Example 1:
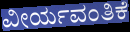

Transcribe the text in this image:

ವೀರ್ಯವಂತಿಕೆ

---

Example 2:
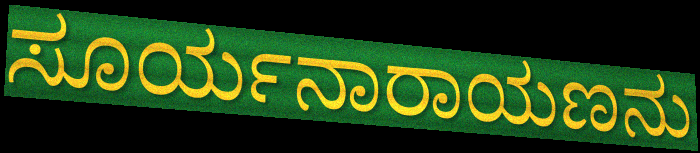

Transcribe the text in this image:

ಸೂರ್ಯನಾರಾಯಣನು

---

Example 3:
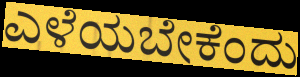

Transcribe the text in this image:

ಎಳೆಯಬೇಕೆಂದು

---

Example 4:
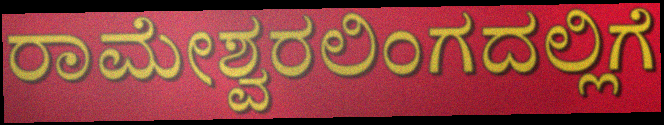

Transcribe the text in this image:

ರಾಮೇಶ್ವರಲಿಂಗದಲ್ಲಿಗೆ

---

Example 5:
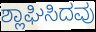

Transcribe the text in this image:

ಶ್ಲಾಘಿಸಿದವು